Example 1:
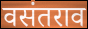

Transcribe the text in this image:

वसंतराव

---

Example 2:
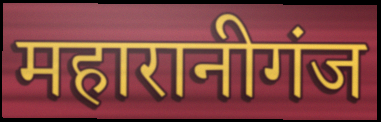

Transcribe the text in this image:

महारानीगंज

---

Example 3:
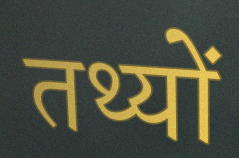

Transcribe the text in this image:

तथ्यों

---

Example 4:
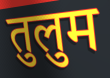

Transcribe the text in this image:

तुलुम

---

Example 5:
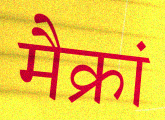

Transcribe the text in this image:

मैक्रां